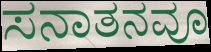
ಸನಾತನವೂ